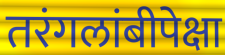
तरंगलांबीपेक्षा